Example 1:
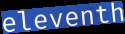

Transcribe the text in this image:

eleventh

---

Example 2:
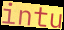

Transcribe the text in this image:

intu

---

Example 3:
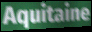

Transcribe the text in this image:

Aquitaine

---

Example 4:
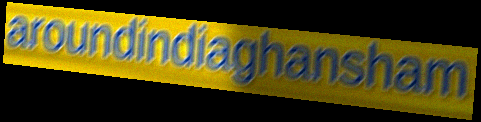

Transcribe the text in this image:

aroundindiaghansham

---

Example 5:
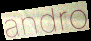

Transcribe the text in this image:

andro